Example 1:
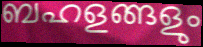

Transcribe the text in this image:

ബഹളങ്ങളും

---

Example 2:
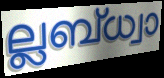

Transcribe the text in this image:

ല്ലബ്ധ്വാ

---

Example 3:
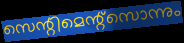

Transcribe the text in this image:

സെന്റിമെന്റ്സൊന്നും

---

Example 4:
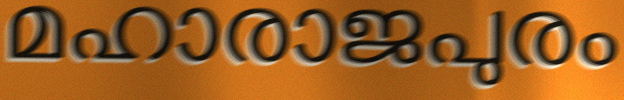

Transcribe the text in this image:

മഹാരാജപുരം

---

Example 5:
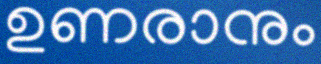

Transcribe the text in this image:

ഉണരാനും